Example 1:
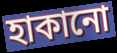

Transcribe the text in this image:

হাকানো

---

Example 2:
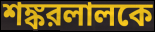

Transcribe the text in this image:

শঙ্করলালকে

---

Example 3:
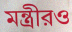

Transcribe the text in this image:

মন্ত্রীরও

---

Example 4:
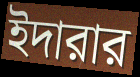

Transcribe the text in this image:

ইদারার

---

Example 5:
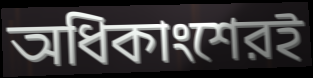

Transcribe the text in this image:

অধিকাংশেরই